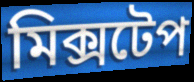
মিক্সটেপ